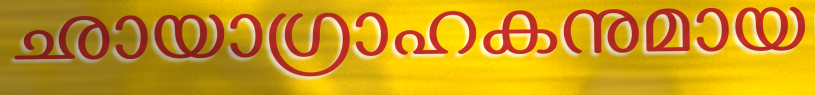
ഛായാഗ്രാഹകനുമായ